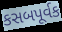
કસબપૂર્વક